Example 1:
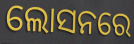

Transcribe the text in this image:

ଲୋସନରେ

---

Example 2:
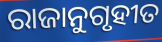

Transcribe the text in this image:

ରାଜାନୁଗୃହୀତ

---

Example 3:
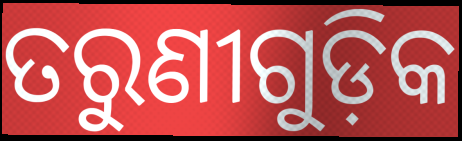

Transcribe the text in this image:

ତରୁଣୀଗୁଡ଼ିକ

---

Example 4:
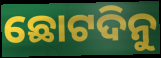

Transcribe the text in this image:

ଛୋଟଦିନୁ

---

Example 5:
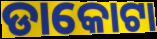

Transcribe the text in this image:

ଡାକୋଟା